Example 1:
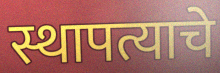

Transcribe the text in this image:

स्थापत्याचे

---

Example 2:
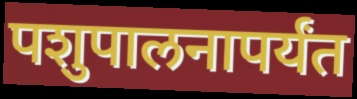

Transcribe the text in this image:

पशुपालनापर्यंत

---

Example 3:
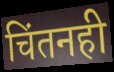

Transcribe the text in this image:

चिंतनही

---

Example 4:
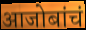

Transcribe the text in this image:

आजोबांचं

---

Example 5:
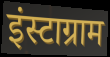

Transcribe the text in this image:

इंस्टाग्राम